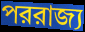
পররাজ্য